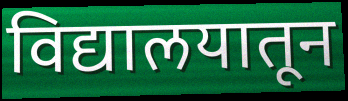
विद्यालयातून